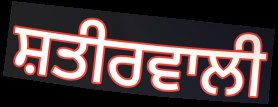
ਸ਼ਤੀਰਵਾਲੀ